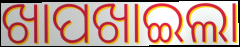
ଖାପଖାଇଲା